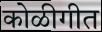
कोळीगीत